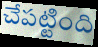
చేపట్టింది